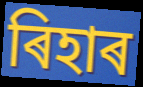
ৰিহাৰ